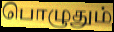
பொழுதும்